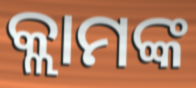
କ୍ଲାମଙ୍କ